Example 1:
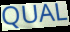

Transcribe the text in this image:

QUAL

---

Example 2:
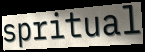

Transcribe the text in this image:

spritual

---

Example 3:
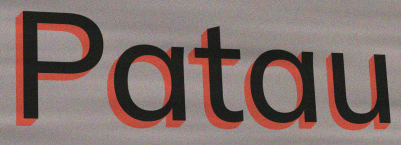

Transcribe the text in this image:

Patau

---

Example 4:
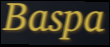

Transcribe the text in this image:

Baspa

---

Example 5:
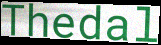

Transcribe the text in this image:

Thedal